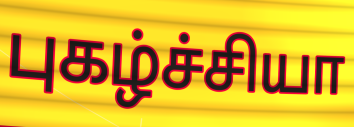
புகழ்ச்சியா